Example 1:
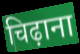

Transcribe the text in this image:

चिढ़ाना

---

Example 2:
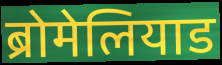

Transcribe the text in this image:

ब्रोमेलियाड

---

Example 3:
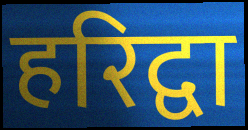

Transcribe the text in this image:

हरिद्वा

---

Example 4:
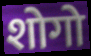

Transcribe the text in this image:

शोगो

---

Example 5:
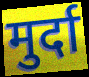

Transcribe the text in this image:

मुर्दा